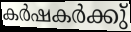
കർഷകർക്കു്